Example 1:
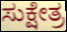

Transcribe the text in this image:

ಸುಕ್ಷೇತ್ರ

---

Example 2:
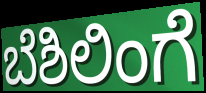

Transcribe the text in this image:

ಬೆಶಿಲಿಂಗೆ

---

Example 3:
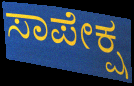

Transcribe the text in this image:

ಸಾಪೇಕ್ಷ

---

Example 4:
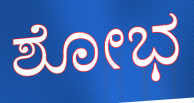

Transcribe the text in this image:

ಶೋಭ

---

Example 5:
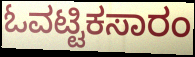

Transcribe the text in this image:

ಓವಟ್ಟಿಕಸಾರಂ